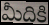
మీదికి